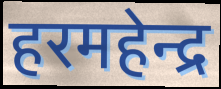
हरमहेन्द्र